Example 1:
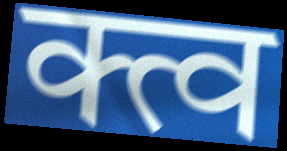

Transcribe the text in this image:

क्त्व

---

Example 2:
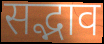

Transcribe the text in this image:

सद्भाव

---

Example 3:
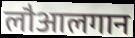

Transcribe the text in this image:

लौआलगान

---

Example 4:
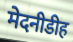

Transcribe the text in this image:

मेदनीडीह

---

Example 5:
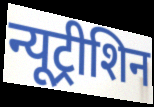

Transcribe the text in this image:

न्यूट्रीशिन